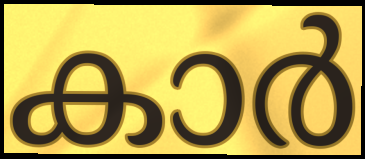
കാർ